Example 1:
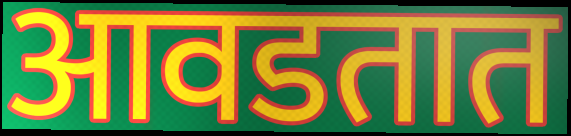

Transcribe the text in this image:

आवडतात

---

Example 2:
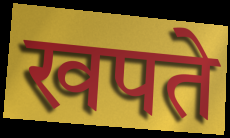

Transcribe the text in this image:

खपते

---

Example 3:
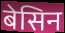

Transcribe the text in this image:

बेसिन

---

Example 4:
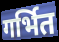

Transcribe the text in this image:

गर्भित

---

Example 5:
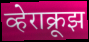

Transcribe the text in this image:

व्हेराक्रूझ